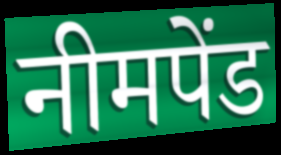
नीमपेंड